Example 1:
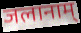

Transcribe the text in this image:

जलानाम्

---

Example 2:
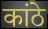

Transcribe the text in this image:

कांठे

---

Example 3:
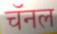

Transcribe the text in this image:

चॅनल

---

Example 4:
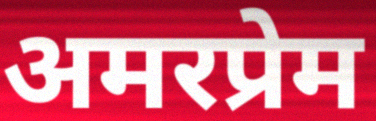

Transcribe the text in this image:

अमरप्रेम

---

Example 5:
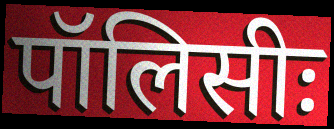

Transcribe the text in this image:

पॉलिसीः